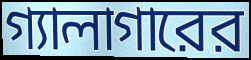
গ্যালাগারের